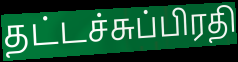
தட்டச்சுப்பிரதி